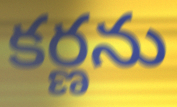
కర్ణను